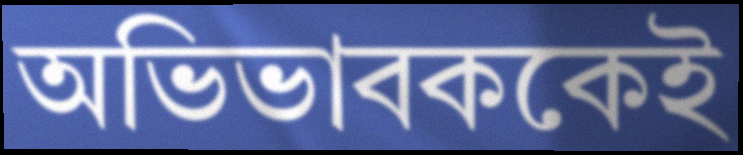
অভিভাবককেই